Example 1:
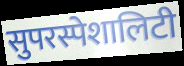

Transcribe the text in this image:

सुपरस्पेशालिटी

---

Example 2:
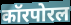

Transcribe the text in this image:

कॉरपोरल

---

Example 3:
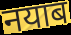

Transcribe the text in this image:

नयाब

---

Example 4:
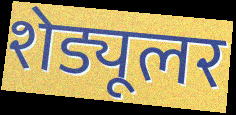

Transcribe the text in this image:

शेड्यूलर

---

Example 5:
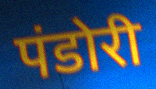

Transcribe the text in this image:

पंडोरी